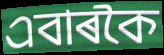
এবাৰকৈ